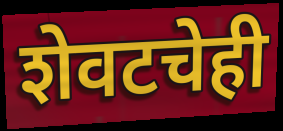
शेवटचेही